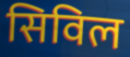
सिविल